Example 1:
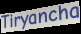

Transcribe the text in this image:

Tiryancha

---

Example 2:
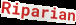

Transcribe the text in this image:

Riparian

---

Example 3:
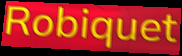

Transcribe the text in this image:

Robiquet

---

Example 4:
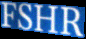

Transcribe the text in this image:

FSHR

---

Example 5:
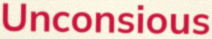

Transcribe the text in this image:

Unconsious